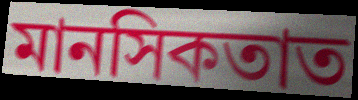
মানসিকতাত